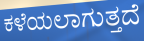
ಕಳೆಯಲಾಗುತ್ತದೆ